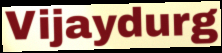
Vijaydurg